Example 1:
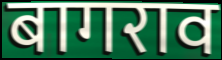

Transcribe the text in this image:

बागराव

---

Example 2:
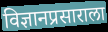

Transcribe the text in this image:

विज्ञानप्रसाराला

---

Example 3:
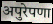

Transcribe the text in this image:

अपुरेपणा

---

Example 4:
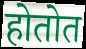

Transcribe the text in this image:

होतोत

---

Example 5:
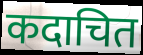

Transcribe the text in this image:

कदाचित